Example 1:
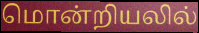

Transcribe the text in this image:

மொன்றியலில்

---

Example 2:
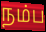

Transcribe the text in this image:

நம்ப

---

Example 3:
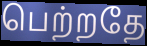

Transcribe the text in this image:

பெற்றதே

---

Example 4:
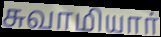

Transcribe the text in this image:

சுவாமியார்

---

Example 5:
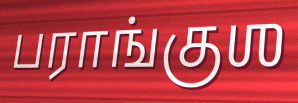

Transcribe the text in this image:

பராங்குஶ